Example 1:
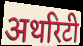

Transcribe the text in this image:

अथरिटी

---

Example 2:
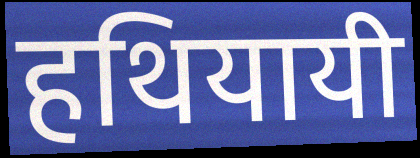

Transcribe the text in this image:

हथियायी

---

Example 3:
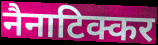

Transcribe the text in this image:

नैनाटिक्कर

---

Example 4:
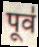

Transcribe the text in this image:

पूव॑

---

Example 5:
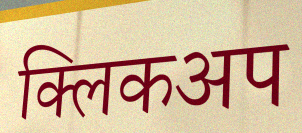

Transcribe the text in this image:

क्लिकअप